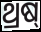
ଥ୍ରଷ୍